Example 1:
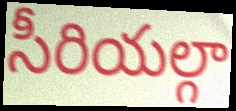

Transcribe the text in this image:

సీరియల్గా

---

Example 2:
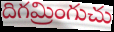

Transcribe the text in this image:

దిగమ్రింగుచు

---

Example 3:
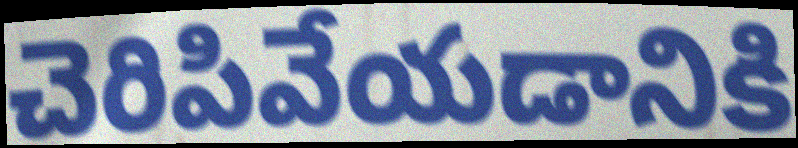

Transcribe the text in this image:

చెరిపివేయడానికి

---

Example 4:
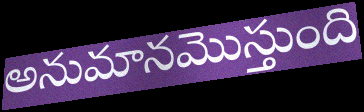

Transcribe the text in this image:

అనుమానమొస్తుంది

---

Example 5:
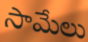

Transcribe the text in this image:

సామేలు